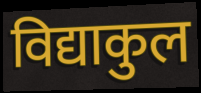
विद्याकुल